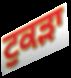
ਟੁਕੜਾ